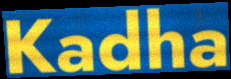
Kadha